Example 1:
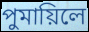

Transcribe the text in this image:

পুমায়িলে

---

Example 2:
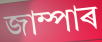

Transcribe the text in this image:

জাম্পাৰ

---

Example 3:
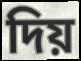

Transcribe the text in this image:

দিয়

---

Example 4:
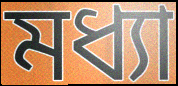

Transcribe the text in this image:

মধ্যা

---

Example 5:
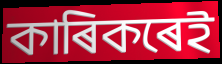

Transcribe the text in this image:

কাৰিকৰেই